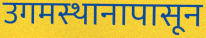
उगमस्थानापासून